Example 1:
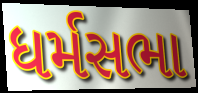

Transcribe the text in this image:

ધર્મસભા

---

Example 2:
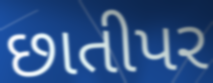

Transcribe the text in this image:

છાતીપર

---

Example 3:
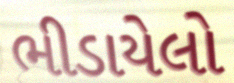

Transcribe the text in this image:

ભીડાયેલો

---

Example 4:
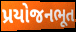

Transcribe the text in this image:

પ્રયોજનભૂત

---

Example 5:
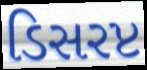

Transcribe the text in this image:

ડિસરપ્ટ